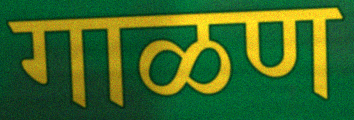
गाळण